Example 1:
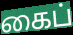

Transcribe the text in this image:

கைப்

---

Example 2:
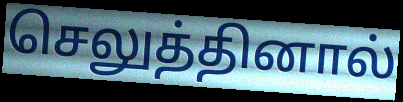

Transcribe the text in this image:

செலுத்தினால்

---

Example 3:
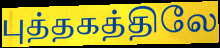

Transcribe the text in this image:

புத்தகத்திலே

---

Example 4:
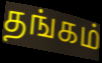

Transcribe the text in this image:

தங்கம்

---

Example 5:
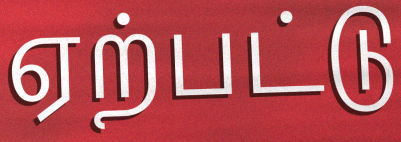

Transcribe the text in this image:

ஏற்பட்டு